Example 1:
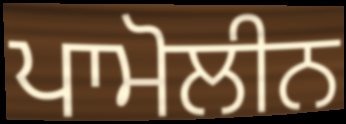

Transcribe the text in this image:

ਪਾਮੋਲੀਨ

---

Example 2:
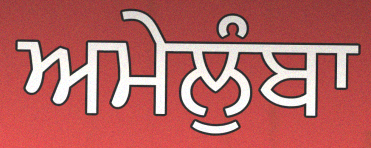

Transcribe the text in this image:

ਅਮੇਲੁੰਬਾ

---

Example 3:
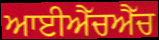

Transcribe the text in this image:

ਆਈਐੱਚਐੱਚ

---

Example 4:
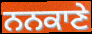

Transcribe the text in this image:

ਨਨਕਾਣੇ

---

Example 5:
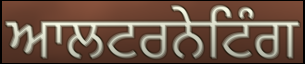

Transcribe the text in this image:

ਆਲਟਰਨੇਟਿੰਗ